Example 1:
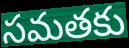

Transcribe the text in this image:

సమతకు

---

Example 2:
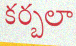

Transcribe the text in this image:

కర్బలా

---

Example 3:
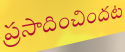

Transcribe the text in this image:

ప్రసాదించిందట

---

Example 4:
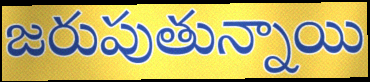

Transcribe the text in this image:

జరుపుతున్నాయి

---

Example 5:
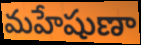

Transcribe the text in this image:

మహేషుణా